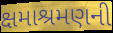
ક્ષમાશ્રમણની